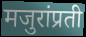
मजुरांप्रती